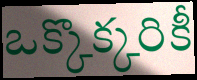
ఒక్కొక్కరికీ